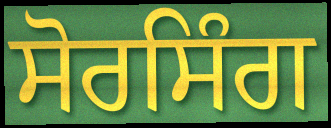
ਸੋਰਸਿੰਗ